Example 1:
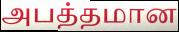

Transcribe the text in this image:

அபத்தமான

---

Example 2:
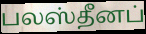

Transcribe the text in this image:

பலஸ்தீனப்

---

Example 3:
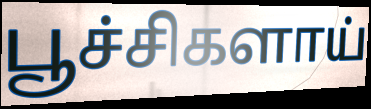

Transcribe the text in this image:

பூச்சிகளாய்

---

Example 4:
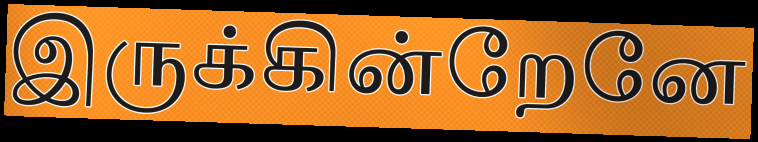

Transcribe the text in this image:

இருக்கின்றேனே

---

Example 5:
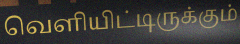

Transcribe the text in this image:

வெளியிட்டிருக்கும்